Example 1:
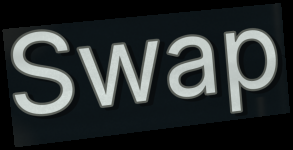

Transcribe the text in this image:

Swap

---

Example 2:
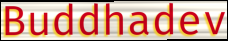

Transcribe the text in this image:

Buddhadev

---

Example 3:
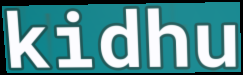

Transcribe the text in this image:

kidhu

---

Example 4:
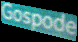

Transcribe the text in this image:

Gospode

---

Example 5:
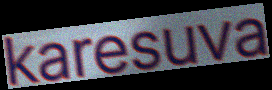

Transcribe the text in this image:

karesuva